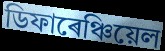
ডিফাৰেঞ্চিয়েল